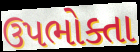
ઉપભોક્તા